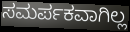
ಸಮರ್ಪಕವಾಗಿಲ್ಲ